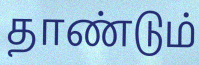
தாண்டும்